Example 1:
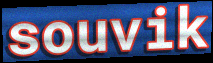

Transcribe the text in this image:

souvik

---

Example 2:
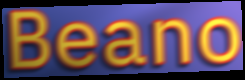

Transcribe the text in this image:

Beano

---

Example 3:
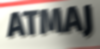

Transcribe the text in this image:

ATMAJ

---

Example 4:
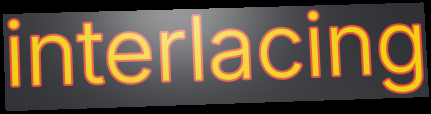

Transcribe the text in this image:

interlacing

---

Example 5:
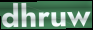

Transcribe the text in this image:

dhruw